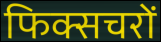
फिक्सचरों